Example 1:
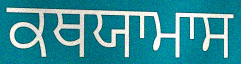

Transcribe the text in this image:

ਕਥਯਾਮਾਸ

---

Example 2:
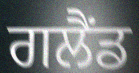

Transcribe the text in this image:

ਗਲੈਂਡ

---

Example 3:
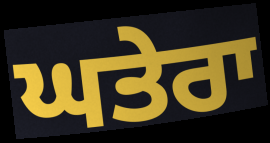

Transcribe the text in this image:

ਘਤੇਰਾ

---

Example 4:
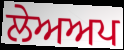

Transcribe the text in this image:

ਲੇਅਅਪ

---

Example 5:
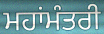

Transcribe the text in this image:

ਮਹਾਂਮੰਤਰੀ